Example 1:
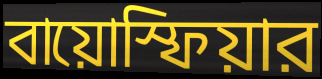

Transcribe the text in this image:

বায়োস্ফিয়ার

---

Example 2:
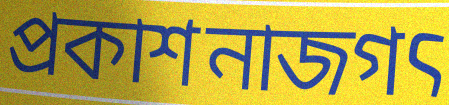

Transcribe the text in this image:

প্রকাশনাজগৎ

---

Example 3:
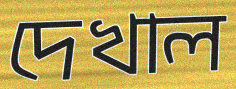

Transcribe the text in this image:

দেখাল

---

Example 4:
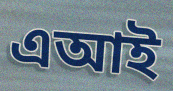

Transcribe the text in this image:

এআই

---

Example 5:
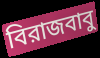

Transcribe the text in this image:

বিরাজবাবু